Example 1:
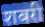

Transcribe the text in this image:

शबरी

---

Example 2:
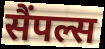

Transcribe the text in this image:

सैंपल्स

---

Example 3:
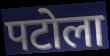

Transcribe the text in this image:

पटोला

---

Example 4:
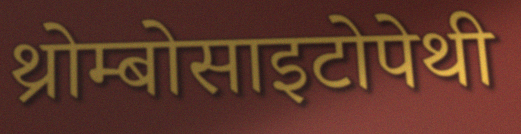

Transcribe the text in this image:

थ्रोम्बोसाइटोपेथी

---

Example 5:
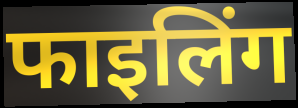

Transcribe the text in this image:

फाइलिंग